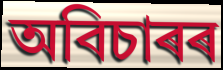
অবিচাৰৰ